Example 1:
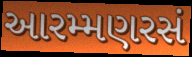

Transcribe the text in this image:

આરમ્મણરસં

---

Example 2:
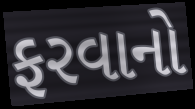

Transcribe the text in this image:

ફરવાનો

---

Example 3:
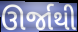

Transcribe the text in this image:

ઊર્જાથી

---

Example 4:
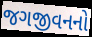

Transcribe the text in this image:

જગજીવનનો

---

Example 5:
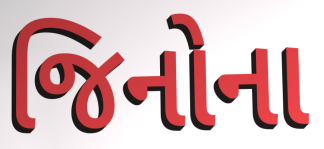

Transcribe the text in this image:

જિનોના